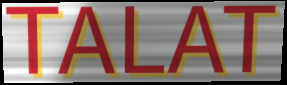
TALAT